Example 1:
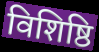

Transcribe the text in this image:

विशिष्ठि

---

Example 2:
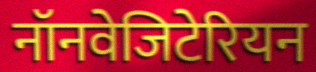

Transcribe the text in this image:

नॉनवेजिटेरियन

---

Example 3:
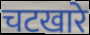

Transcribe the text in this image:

चटखारे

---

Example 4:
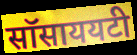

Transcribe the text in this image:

सॉसाययटी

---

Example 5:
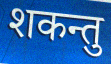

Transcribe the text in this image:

शकन्तु